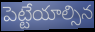
పెట్టేయాల్సిన